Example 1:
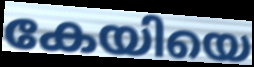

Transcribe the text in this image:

കേയിയെ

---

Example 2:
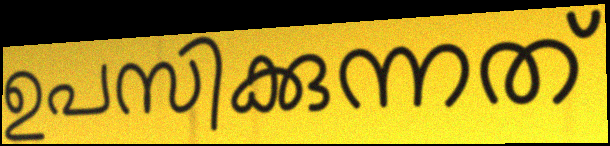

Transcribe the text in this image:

ഉപസിക്കുന്നത്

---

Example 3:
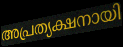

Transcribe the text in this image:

അപ്രത്യക്ഷനായി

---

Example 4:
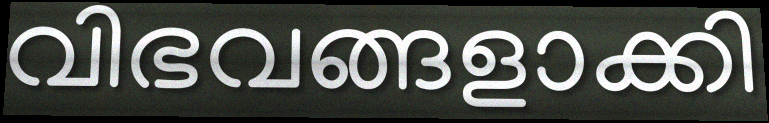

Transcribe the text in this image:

വിഭവങ്ങളാക്കി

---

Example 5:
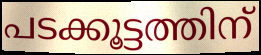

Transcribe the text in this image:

പടക്കൂട്ടത്തിന്